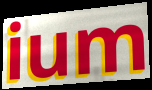
ium